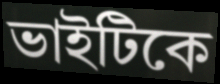
ভাইটিকে